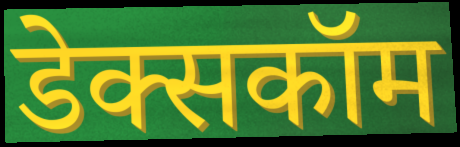
डेक्सकॉम